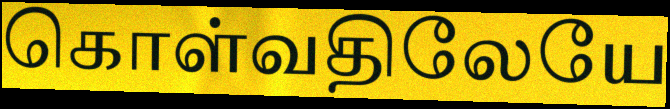
கொள்வதிலேயே